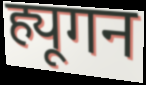
ह्यूगन